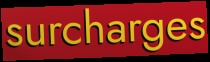
surcharges